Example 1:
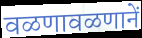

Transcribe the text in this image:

वळणावळणानें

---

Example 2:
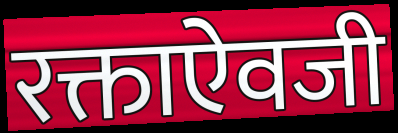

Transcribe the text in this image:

रक्ताऐवजी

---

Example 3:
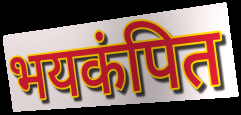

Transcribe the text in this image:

भयकंपित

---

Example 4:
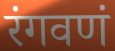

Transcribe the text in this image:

रंगवणं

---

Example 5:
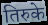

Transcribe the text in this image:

तिरुके